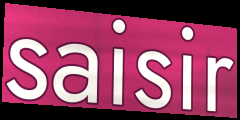
saisir